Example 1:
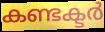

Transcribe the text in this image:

കണ്ടക്ടർ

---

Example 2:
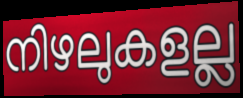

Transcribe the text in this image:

നിഴലുകളല്ല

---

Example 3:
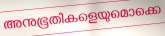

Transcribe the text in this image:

അനുഭൂതികളെയുമൊക്കെ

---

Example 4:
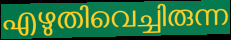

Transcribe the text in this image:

എഴുതിവെച്ചിരുന്ന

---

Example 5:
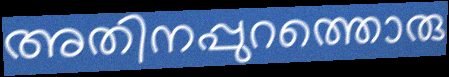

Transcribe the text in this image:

അതിനപ്പുറത്തൊരു